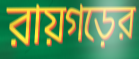
রায়গড়ের